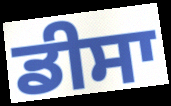
ਡੀਸਾ